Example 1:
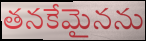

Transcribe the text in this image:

తనకేమైనను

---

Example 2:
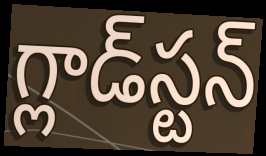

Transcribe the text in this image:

గ్లాడ్‌స్టన్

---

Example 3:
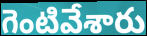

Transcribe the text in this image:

గెంటివేశారు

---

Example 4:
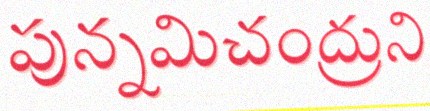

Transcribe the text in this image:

పున్నమిచంద్రుని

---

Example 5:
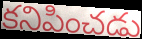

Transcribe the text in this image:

కనిపించడు